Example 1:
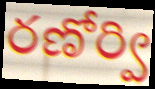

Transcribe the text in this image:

రణోర్వి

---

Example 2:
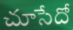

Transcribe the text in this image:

చూసేదో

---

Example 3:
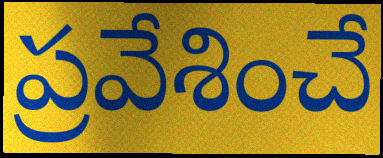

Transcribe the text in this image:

ప్రవేశించే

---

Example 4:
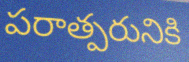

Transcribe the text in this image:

పరాత్పరునికి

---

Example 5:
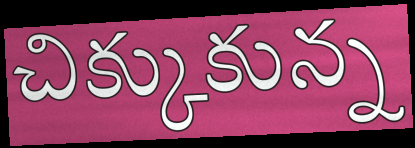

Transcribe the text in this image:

చిక్కుకున్న